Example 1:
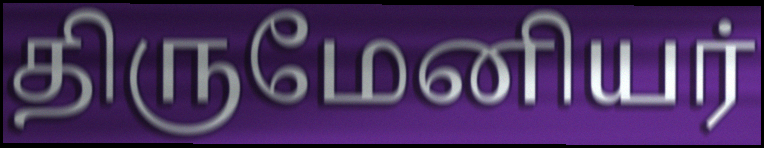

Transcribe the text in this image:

திருமேனியர்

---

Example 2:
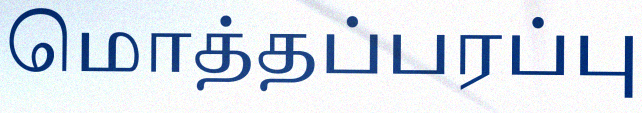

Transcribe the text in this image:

மொத்தப்பரப்பு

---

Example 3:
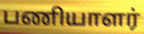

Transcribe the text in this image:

பணியாளர்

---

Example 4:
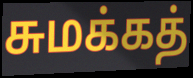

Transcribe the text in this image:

சுமக்கத்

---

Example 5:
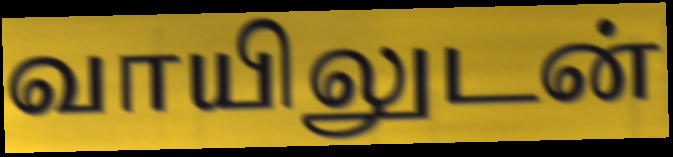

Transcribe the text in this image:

வாயிலுடன்